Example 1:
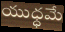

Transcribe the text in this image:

యుధ్ధమే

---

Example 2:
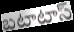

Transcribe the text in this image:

బటాటాస్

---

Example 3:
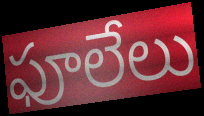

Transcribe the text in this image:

ఫూలేలు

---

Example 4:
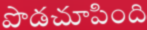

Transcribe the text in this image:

పొడచూపింది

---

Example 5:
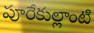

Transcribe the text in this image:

పూరేకుల్లాంటి